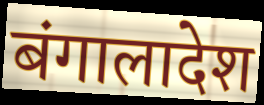
बंगालादेश